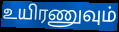
உயிரணுவும்